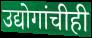
उद्योगांचीही